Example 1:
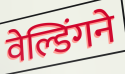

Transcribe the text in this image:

वेल्डिंगने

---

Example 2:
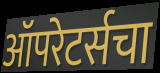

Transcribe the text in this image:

ऑपरेटर्सचा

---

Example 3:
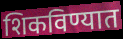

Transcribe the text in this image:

शिकविण्यात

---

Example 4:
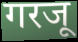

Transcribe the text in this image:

गरजू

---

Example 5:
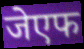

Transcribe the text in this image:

जेएफ